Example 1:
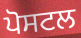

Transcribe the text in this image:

ਪੋਸਟਲ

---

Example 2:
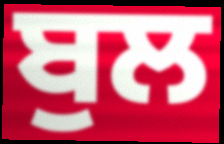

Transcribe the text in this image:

ਬੁਲ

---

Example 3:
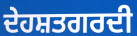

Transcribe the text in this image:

ਦੇਹਸ਼ਤਗਰਦੀ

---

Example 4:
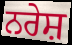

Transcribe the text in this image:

ਨਰੇਸ਼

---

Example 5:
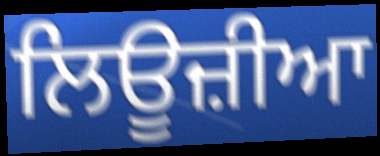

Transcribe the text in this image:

ਲਿਊਜ਼ੀਆ